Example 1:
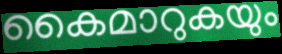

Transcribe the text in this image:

കൈമാറുകയും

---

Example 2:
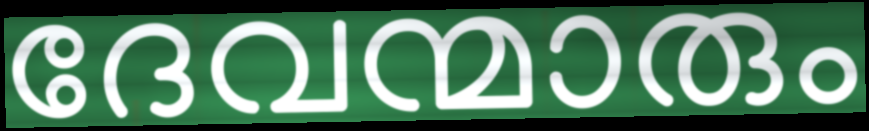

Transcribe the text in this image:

ദേവന്മാരും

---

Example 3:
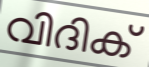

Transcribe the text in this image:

വിദിക്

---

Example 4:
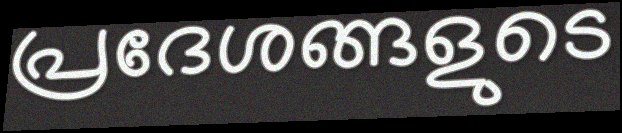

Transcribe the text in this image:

പ്രദേശങ്ങളുടെ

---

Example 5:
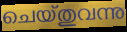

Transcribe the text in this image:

ചെയ്തുവന്നു